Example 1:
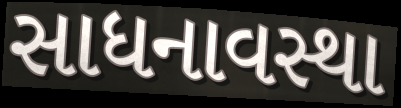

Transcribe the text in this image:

સાધનાવસ્થા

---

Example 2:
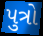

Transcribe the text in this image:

પુત્રો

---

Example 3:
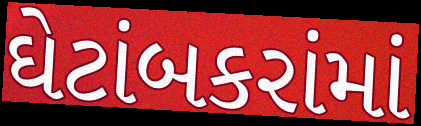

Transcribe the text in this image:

ઘેટાંબકરાંમાં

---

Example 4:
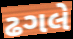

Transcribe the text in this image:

ઢગલે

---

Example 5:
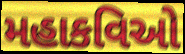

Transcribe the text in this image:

મહાકવિઓ